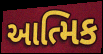
આત્મિક